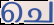
ചെ